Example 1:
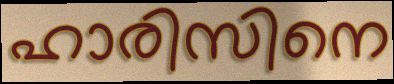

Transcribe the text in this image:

ഹാരിസിനെ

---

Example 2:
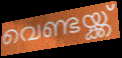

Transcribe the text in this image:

വെണ്ടയ്ക്ക്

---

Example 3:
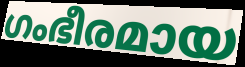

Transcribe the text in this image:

ഗംഭീരമായ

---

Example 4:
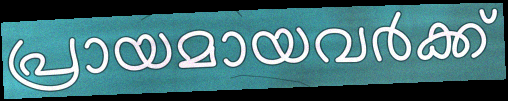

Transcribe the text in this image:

പ്രായമായവർക്ക്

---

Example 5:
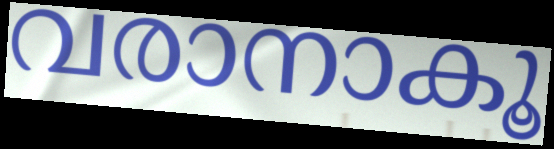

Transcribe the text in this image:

വരാനാകൂ